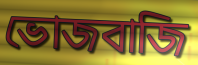
ভোজবাজি